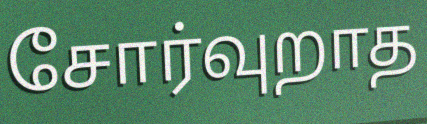
சோர்வுறாத